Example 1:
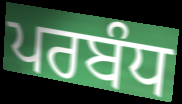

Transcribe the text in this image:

ਪਰਬੰਧ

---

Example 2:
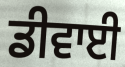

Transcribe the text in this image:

ਡੀਵਾਈ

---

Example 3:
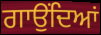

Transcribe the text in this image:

ਗਾਉਂਦਿਆਂ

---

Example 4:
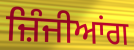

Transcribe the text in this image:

ਜ਼ਿੰਜੀਆਂਗ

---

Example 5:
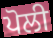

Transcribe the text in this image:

ਪੋਲੀ